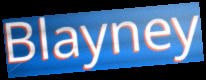
Blayney